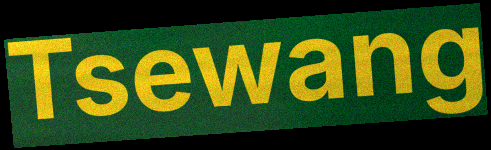
Tsewang